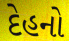
દેહનો